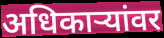
अधिकाऱ्यांवर